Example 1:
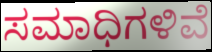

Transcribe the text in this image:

ಸಮಾಧಿಗಳಿವೆ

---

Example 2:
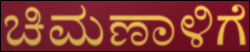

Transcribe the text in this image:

ಚಿಮಣಾಳಿಗೆ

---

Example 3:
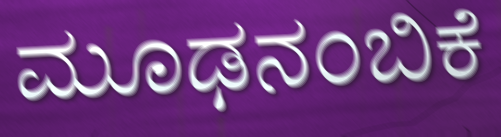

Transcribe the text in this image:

ಮೂಢನಂಬಿಕೆ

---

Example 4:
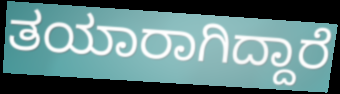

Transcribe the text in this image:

ತಯಾರಾಗಿದ್ದಾರೆ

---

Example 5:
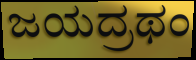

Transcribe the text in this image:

ಜಯದ್ರಥಂ